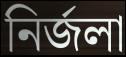
নির্জলা